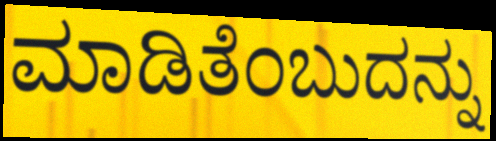
ಮಾಡಿತೆಂಬುದನ್ನು